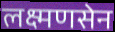
लक्ष्मणसेन